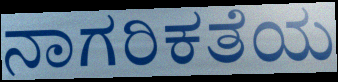
ನಾಗರಿಕತೆಯ